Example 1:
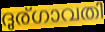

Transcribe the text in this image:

ദുര്ഗാവതി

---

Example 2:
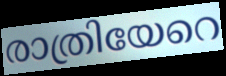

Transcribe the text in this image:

രാത്രിയേറെ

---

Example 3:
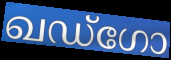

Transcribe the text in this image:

ഖഡ്ഗോ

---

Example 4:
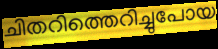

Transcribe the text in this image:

ചിതറിത്തെറിച്ചുപോയ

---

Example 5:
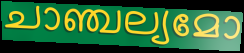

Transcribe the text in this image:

ചാഞ്ചല്യമോ